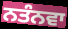
ਨਤੰਨਵਾ